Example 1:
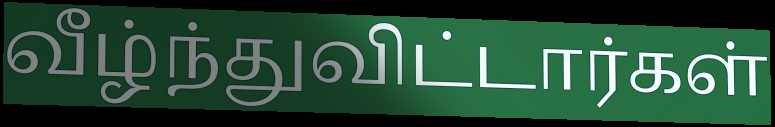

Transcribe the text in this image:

வீழ்ந்துவிட்டார்கள்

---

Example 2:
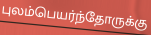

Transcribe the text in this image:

புலம்பெயர்ந்தோருக்கு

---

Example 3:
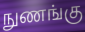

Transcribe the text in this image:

நுணங்கு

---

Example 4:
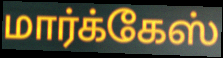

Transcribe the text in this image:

மார்க்கேஸ்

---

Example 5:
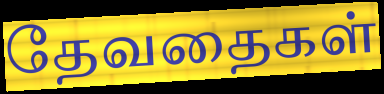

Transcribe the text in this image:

தேவதைகள்